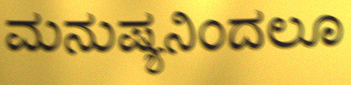
ಮನುಷ್ಯನಿಂದಲೂ